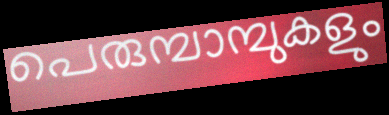
പെരുമ്പാമ്പുകളും